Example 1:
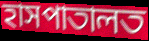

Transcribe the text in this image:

হাসপাতালত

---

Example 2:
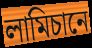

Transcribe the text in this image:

লামিচানে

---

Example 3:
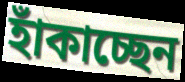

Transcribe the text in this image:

হাঁকাচ্ছেন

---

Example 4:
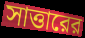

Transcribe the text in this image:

সাত্তারের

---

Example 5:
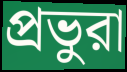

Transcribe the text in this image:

প্রভুরা